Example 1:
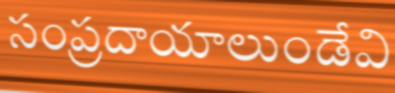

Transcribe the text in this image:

సంప్రదాయాలుండేవి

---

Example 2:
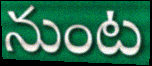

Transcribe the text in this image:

నుంట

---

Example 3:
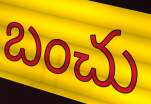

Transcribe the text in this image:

బంచు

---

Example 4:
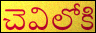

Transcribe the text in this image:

చెవిలోకి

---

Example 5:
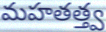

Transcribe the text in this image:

మహతత్త్వ